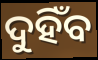
ଦୁହିଁବ